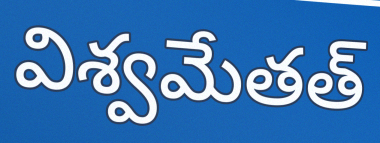
విశ్వమేతత్